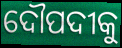
ଦୌପଦୀକୁ